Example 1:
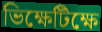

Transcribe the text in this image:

ভিক্ষেটিক্ষে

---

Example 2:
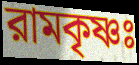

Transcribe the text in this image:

রামকৃষ্ণঃ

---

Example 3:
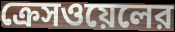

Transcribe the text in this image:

ক্রেসওয়েলের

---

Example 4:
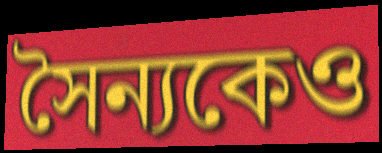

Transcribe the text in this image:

সৈন্যকেও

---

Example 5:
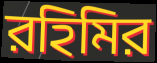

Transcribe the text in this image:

রহিমির